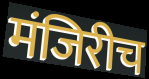
मंजिरीच